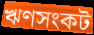
ঋণসংকট